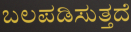
ಬಲಪಡಿಸುತ್ತದೆ